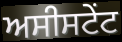
ਅਸੀਸਟੇਂਟ